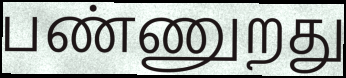
பண்ணுறது